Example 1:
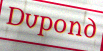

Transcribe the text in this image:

Dupond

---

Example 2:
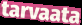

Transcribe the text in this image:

tarvaata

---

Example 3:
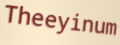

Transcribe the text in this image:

Theeyinum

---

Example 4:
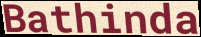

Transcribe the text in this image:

Bathinda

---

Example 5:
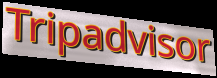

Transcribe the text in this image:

Tripadvisor